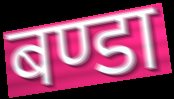
बण्डा